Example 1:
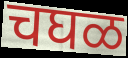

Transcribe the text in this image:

चघळ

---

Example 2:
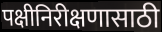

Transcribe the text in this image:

पक्षीनिरीक्षणासाठी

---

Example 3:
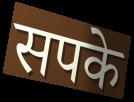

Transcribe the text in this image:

सपके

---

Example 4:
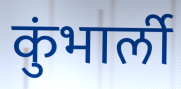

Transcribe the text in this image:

कुंभार्ली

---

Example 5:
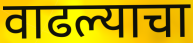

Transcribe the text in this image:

वाढल्याचा